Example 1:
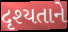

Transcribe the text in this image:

દૃશ્યતાને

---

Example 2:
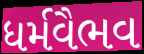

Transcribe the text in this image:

ધર્મવૈભવ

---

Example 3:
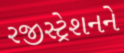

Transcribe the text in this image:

રજીસ્ટ્રેશનને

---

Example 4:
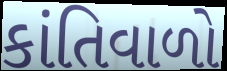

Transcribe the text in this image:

કાંતિવાળો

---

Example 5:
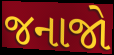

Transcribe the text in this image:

જનાજો